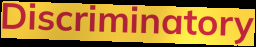
Discriminatory